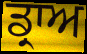
ਡ੍ਰਾਅ